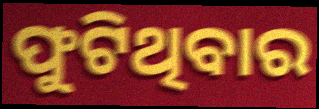
ଫୁଟିଥିବାର